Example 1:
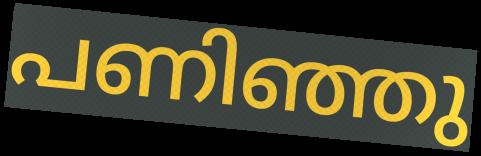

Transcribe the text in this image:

പണിഞ്ഞു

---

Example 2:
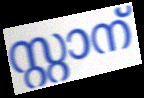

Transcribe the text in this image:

സ്റ്റാന്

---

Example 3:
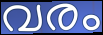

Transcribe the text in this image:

വരം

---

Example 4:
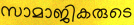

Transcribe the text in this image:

സാമാജികരുടെ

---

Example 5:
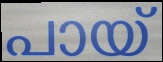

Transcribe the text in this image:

പായ്